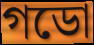
গডো